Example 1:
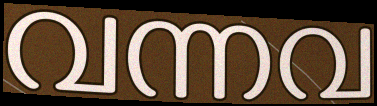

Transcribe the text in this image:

വന്നവ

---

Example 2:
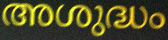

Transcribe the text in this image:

അശുദ്ധം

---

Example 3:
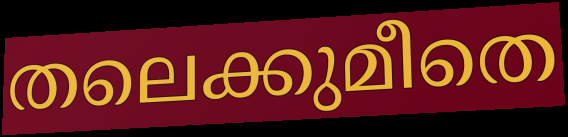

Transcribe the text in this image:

തലെക്കുമീതെ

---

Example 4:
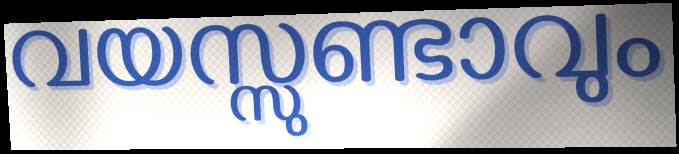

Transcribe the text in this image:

വയസ്സുണ്ടാവും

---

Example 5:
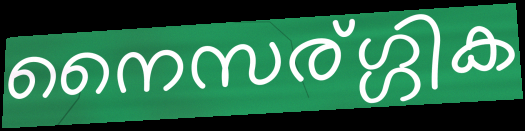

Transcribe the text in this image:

നൈസര്ഗ്ഗിക